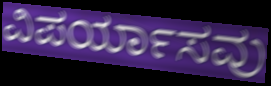
ವಿಪರ್ಯಾಸವು